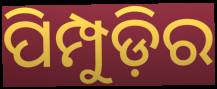
ପିମ୍ପୁଡ଼ିର